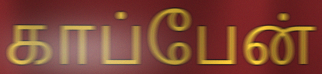
காப்பேன்